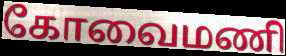
கோவைமணி